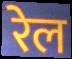
रेल